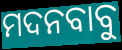
ମଦନବାବୁ